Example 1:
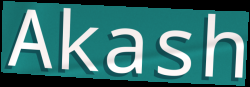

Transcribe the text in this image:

Akash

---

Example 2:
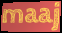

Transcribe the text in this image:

maaj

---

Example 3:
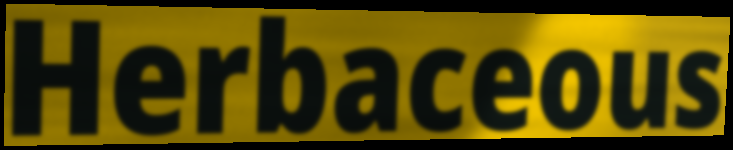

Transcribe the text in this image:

Herbaceous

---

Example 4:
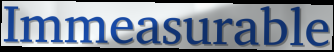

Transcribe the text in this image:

Immeasurable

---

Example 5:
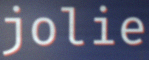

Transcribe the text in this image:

jolie